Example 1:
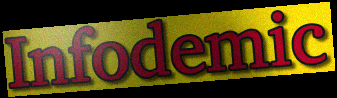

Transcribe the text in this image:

Infodemic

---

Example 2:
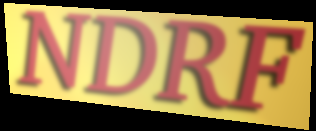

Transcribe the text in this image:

NDRF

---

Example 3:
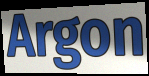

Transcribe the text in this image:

Argon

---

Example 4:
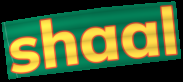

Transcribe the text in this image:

shaal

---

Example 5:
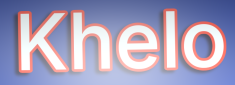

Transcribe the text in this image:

Khelo